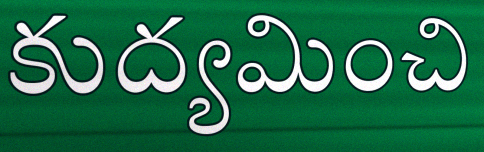
కుద్యమించి